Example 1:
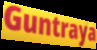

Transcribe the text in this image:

Guntraya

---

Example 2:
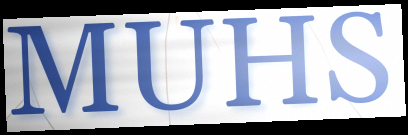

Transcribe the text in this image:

MUHS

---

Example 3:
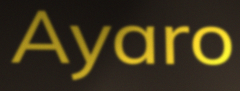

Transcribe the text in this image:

Ayaro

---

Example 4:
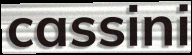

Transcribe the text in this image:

cassini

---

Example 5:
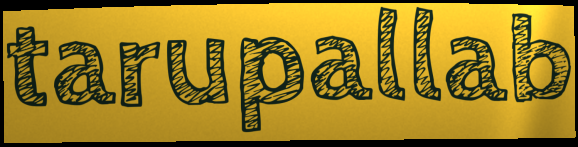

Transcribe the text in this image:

tarupallab